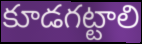
కూడగట్టాలి